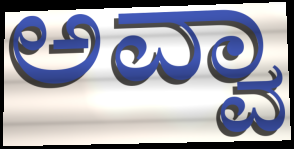
ಅವ್ವಾ